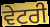
ਵੇਟਰੀ